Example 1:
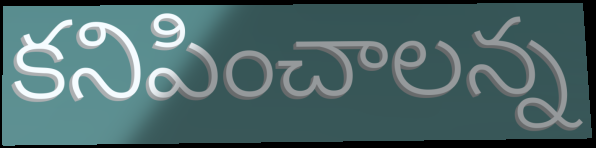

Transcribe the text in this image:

కనిపించాలన్న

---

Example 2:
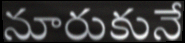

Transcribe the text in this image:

నూరుకునే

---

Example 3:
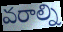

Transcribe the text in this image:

వరాల్ని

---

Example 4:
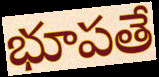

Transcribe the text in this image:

భూపతే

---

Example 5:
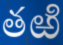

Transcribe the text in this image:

తఱి